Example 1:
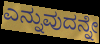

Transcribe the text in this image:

ಎನ್ನುವುದನ್ನೇ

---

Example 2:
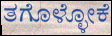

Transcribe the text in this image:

ತಗೊಳ್ಳೋಕೆ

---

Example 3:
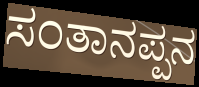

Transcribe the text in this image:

ಸಂತಾನಪ್ಪನ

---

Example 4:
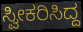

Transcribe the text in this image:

ಸ್ವೀಕರಿಸಿದ್ದ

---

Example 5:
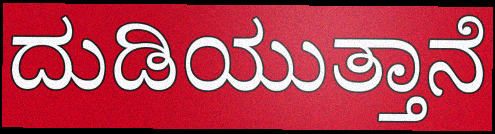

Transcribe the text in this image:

ದುಡಿಯುತ್ತಾನೆ